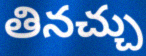
తినచ్చు